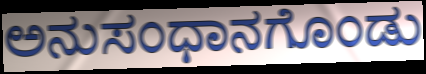
ಅನುಸಂಧಾನಗೊಂಡು